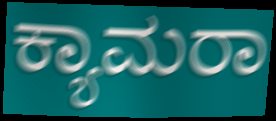
ಕ್ಯಾಮರಾ